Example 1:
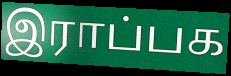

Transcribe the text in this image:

இராப்பக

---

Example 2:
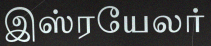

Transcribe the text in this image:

இஸ்ரயேலர்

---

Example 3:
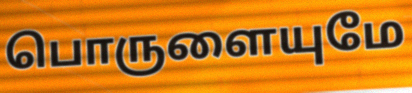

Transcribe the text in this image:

பொருளையுமே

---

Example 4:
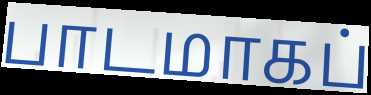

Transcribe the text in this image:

பாடமாகப்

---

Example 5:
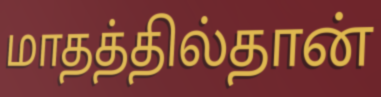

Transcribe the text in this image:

மாதத்தில்தான்